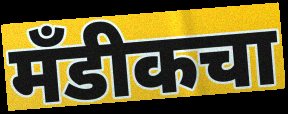
मँडीकचा